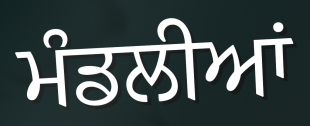
ਮੰਡਲੀਆਂ